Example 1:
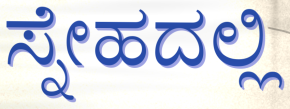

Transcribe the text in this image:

ಸ್ನೇಹದಲ್ಲಿ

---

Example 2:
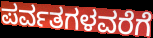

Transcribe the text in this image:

ಪರ್ವತಗಳವರೆಗೆ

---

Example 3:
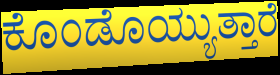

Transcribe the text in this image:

ಕೊಂಡೊಯ್ಯುತ್ತಾರೆ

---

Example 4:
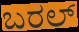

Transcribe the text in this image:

ಬರಲ್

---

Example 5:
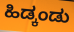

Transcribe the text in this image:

ಹಿಡ್ಕಂಡು